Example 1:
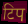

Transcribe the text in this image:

टिप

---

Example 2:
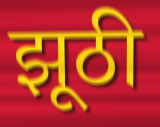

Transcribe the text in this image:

झूठी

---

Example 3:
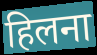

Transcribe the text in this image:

हिलना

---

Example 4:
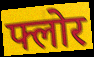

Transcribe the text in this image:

फ्लोर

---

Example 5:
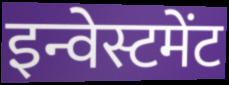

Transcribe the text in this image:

इन्वेस्टमेंट